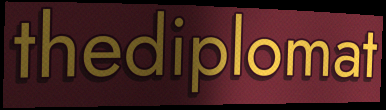
thediplomat